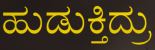
ಹುಡುಕ್ತಿದ್ರು